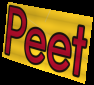
Peet